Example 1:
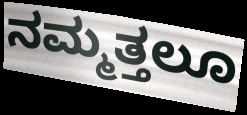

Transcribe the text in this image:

ನಮ್ಮತ್ತಲೂ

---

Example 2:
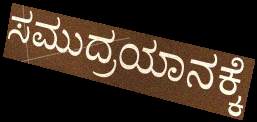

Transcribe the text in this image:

ಸಮುದ್ರಯಾನಕ್ಕೆ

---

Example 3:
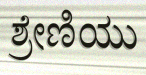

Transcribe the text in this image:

ಶ್ರೇಣಿಯು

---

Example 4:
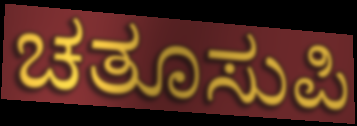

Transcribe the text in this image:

ಚತೂಸುಪಿ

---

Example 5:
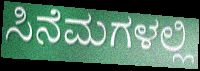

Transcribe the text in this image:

ಸಿನೆಮಗಳಲ್ಲಿ